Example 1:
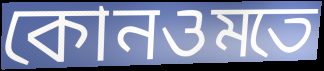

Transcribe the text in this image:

কোনওমতে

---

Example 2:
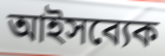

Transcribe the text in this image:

আইসব্যেক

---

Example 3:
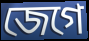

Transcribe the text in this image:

জেগে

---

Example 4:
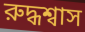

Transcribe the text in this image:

রুদ্ধশ্বাস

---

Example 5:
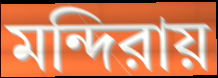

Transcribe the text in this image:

মন্দিরায়